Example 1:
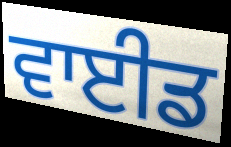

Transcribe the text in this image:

ਵਾਈਡ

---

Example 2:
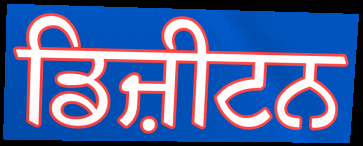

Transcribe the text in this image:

ਡਿਜ਼ੀਟਨ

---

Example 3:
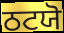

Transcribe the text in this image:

ਠਟਯੋ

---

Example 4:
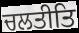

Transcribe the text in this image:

ਚਲਤੀਤਿ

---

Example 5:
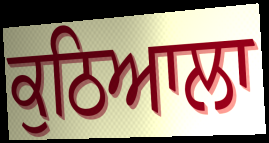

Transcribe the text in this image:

ਕੁਠਿਆਲਾ